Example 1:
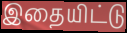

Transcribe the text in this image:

இதையிட்டு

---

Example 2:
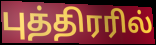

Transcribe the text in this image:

புத்திரரில்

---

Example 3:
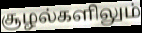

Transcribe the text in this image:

சூழல்களிலும்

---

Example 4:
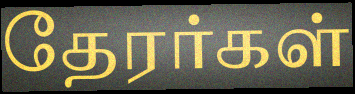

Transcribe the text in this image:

தேரர்கள்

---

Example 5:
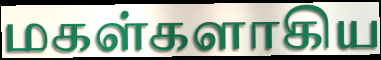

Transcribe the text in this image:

மகள்களாகிய